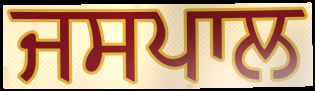
ਜਸਪਾਲ